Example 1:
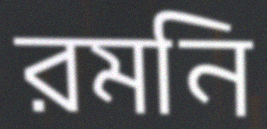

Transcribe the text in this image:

রমনি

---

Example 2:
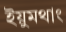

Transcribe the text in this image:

ইয়ুমথাং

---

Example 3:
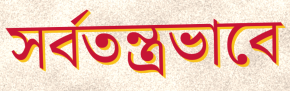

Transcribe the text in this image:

সর্বতন্ত্রভাবে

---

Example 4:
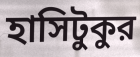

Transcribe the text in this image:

হাসিটুকুর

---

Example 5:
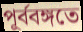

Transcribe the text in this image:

পূর্ববঙ্গতে